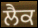
ਲੈਕ